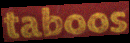
taboos